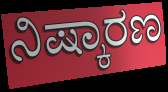
ನಿಷ್ಕಾರಣ